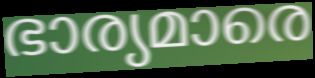
ഭാര്യമാരെ